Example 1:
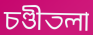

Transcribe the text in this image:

চণ্ডীতলা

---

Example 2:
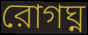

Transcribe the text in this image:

রোগঘ্ন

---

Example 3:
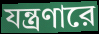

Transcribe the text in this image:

যন্ত্রণারে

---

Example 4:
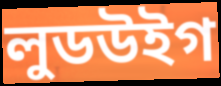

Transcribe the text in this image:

লুডউইগ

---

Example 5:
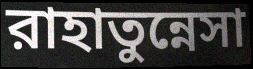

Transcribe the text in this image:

রাহাতুন্নেসা